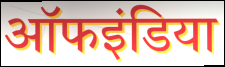
ऑफइंडिया